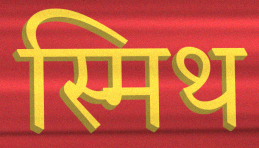
स्मिथ